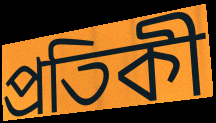
প্ৰতিকী